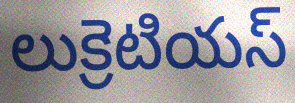
లుక్రెటియస్